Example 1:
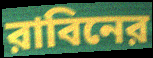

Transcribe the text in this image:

রাবিনের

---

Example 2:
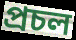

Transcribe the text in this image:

প্রচল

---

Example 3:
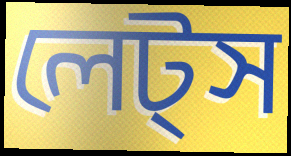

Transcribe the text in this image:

লেট্‌স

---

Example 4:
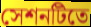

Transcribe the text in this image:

সেশনটিতে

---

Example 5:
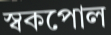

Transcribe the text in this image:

স্বকপোল